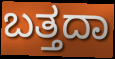
ಬತ್ತದಾ